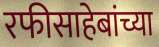
रफीसाहेबांच्या